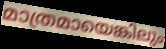
മാത്രമായെങ്കിലും